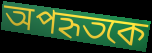
অপহৃতকে